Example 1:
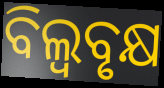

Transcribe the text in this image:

ବିଲ୍ୱବୃକ୍ଷ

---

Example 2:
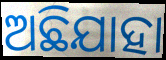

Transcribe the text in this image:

ଅଛିଯାହା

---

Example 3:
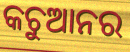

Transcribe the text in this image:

କଚୁଆନର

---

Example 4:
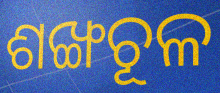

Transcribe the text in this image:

ଶଙ୍ଖଚୂଳ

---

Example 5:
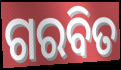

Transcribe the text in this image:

ଗରବିତ